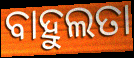
ବାହୁଲତା